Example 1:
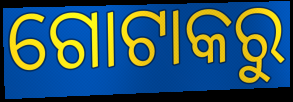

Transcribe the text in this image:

ଗୋଟାକରୁ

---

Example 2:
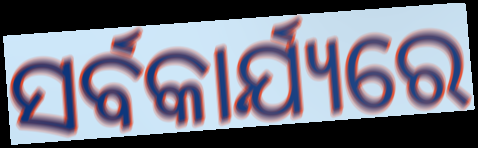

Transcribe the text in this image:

ସର୍ବକାର୍ଯ୍ୟରେ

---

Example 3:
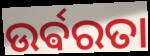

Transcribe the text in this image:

ଉର୍ଵରତା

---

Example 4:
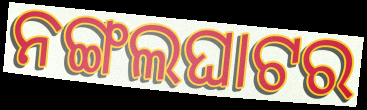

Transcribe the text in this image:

ନଙ୍ଗଲଘାଟର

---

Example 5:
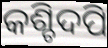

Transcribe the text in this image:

କଶ୍ଚିଦପି